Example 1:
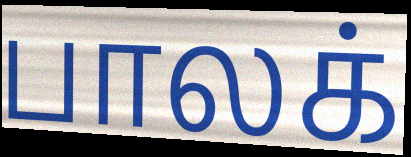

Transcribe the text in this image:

பாலக்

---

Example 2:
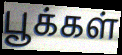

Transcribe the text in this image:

பூக்கள்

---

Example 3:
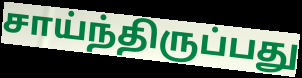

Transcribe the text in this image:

சாய்ந்திருப்பது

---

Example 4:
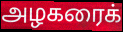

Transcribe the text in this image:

அழகரைக்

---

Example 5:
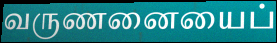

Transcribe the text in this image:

வருணனையைப்